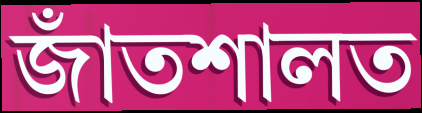
জাঁতশালত